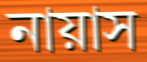
নায়াস